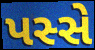
પસ્સે